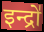
इन्द्रो॑